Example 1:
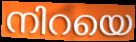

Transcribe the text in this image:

നിറയെ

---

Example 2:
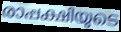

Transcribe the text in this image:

രാപ്പക്ഷിയുടെ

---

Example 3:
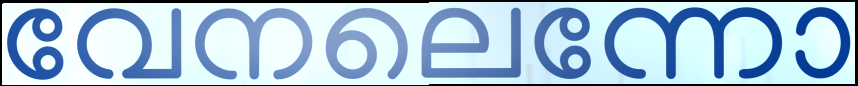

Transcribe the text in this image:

വേനലെന്നോ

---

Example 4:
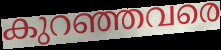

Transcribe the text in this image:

കുറഞ്ഞവരെ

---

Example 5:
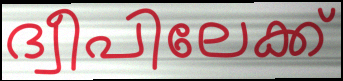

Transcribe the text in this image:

ദ്വീപിലേക്ക്